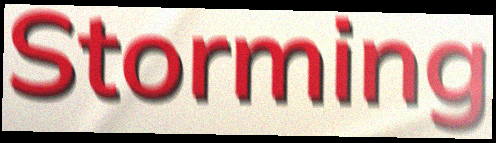
Storming